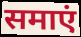
समाएं